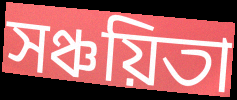
সঞ্চয়িতা